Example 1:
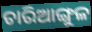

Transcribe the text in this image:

ଚାରିଆଙ୍ଗୁଳ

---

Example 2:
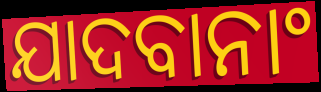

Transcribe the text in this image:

ଯାଦବାନାଂ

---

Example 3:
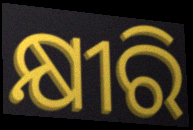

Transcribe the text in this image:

କ୍ଷୀରି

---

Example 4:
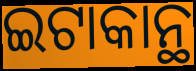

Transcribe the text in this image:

ଇଟାକାନ୍ଥ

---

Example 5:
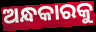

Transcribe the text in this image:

ଅନ୍ଧକାରକୁ